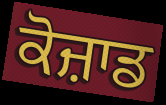
ਕੋਜ਼ਾਡ